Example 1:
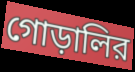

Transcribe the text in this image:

গোড়ালির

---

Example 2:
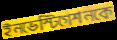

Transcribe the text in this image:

ইনভেস্টিগেশনকে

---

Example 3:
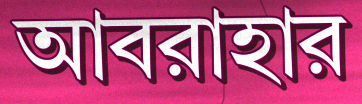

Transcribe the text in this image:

আবরাহার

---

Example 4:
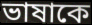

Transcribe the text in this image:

ভাষাকে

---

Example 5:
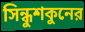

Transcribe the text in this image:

সিন্ধুশকুনের